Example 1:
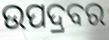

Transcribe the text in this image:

ଉପଦ୍ରବର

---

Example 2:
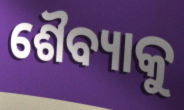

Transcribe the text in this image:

ଶୈବ୍ୟାକୁ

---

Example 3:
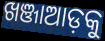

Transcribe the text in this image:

ଖଞ୍ଜାଆଡ଼କୁ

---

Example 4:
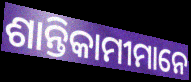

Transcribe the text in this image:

ଶାନ୍ତିକାମୀମାନେ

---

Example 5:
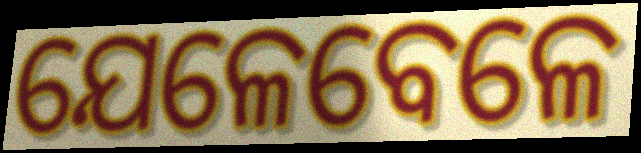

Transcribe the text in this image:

ଯେଳେବେଳେ